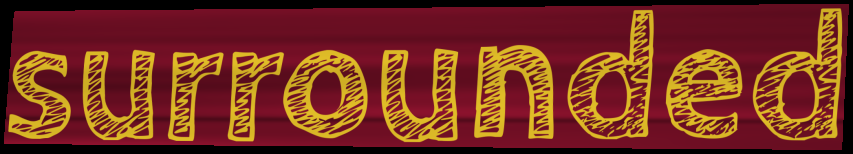
surrounded